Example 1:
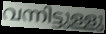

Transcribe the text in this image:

വന്നിട്ടുള്ളു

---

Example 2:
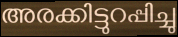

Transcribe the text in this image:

അരക്കിട്ടുറപ്പിച്ചു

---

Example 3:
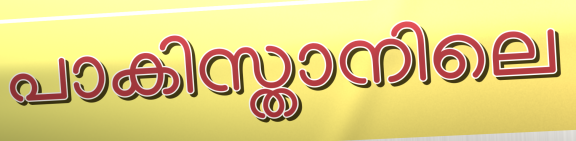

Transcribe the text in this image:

പാകിസ്താനിലെ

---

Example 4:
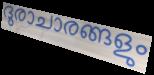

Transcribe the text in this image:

ദുരാചാരങ്ങളും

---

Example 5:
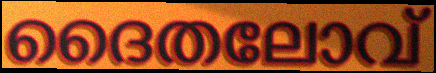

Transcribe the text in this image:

ദൈതലോവ്